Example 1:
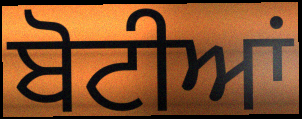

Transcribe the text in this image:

ਬੋਟੀਆਂ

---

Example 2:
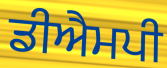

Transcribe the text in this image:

ਡੀਐਮਪੀ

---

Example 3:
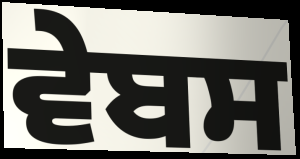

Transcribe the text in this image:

ਵੇਬਸ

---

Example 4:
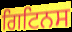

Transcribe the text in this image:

ਗਿਟਿਨਸ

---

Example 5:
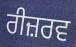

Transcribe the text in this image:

ਰੀਜ਼ਰਵ